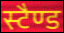
स्टैण्ड